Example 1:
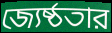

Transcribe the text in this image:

জ্যেষ্ঠতার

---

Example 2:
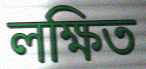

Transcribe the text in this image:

লক্ষিত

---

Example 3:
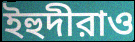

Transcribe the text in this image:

ইহুদীরাও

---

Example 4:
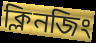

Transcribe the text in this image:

ক্লিনজিং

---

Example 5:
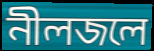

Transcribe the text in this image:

নীলজলে